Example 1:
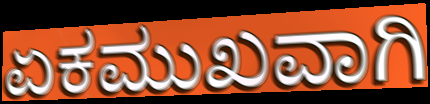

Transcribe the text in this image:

ಏಕಮುಖವಾಗಿ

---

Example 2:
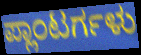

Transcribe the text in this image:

ಪ್ಲಾಂಟರ್ಗಳು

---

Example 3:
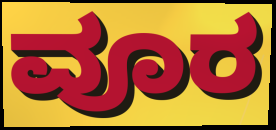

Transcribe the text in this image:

ವೂರ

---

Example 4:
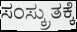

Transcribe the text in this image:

ಸಂಸ್ಕ್ರುತಕ್ಕೆ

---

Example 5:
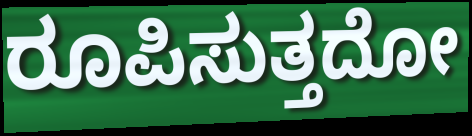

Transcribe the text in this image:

ರೂಪಿಸುತ್ತದೋ